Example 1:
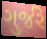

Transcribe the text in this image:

ગુર્જરે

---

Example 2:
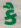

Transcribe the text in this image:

કૈ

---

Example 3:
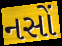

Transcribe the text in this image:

નસોં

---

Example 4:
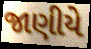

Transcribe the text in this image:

જાણીયે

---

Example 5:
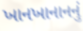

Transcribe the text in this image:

ખાનખાનાનનું